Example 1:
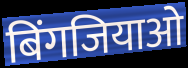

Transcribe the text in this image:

बिंगजियाओ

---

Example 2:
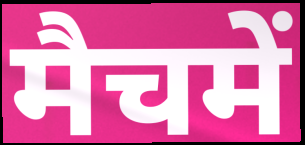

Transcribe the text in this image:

मैचमें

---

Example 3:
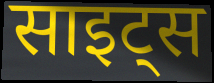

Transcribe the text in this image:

साइट्स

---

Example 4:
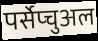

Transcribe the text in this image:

पर्सेप्चुअल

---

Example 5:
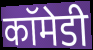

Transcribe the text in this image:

कॉमेडी